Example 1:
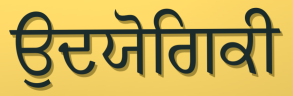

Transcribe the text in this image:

ਉਦਯੋਗਿਕੀ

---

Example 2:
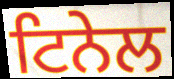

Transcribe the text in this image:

ਟਿਨੇਲ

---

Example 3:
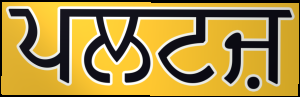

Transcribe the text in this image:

ਪਲਟਜ਼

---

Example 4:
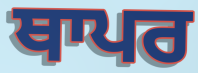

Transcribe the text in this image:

ਥਾਪਰ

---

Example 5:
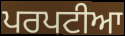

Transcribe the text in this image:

ਪਰਪਟੀਆ